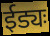
ईड्यः